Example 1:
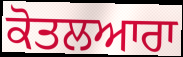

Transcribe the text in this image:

ਕੋਤਲਆਰਾ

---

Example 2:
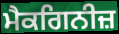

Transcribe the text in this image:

ਮੈਕਗਿਨੀਜ਼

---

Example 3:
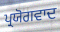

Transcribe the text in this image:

ਪ੍ਰਯੋਗਵਾਦ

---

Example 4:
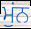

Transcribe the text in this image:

ਮੁਂਨ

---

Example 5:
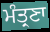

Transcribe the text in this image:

ਮੰਤ੍ਰਣਾ